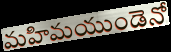
మహిమయుండెనో